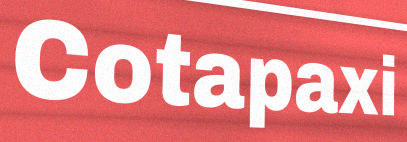
Cotapaxi